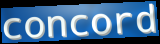
concord